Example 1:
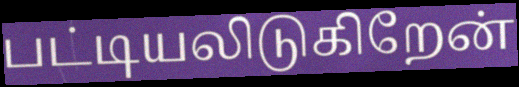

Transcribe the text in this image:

பட்டியலிடுகிறேன்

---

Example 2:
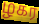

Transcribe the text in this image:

ழகர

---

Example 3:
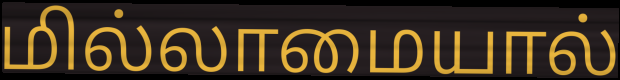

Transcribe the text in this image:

மில்லாமையால்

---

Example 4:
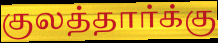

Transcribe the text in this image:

குலத்தார்க்கு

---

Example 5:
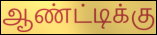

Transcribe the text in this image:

ஆண்ட்டிக்கு